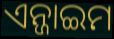
ଏନ୍ଜାଇମ